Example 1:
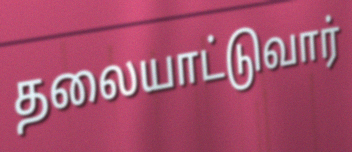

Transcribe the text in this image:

தலையாட்டுவார்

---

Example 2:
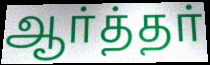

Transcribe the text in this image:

ஆர்த்தர்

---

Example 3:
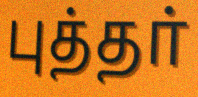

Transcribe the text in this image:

புத்தர்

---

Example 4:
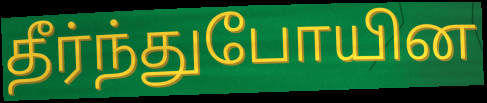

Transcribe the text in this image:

தீர்ந்துபோயின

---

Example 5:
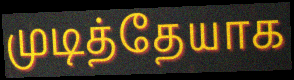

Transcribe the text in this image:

முடித்தேயாக